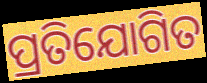
ପ୍ରତିଯୋଗିତ